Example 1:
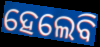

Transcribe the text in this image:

ହେଲେବି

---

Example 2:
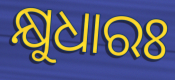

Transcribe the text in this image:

କ୍ଷୁଧାରଃ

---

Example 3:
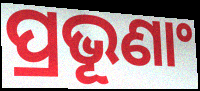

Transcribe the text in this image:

ପ୍ରଭୂଣାଂ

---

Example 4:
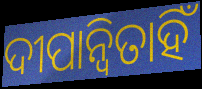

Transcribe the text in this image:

ଦୀପାନ୍ୱିତାହିଁ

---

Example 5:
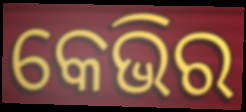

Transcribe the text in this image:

କେଭିର